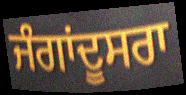
ਜੰਗਾਂਦੂਸਰਾ